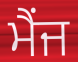
ਮੈਂਜ